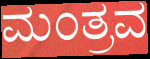
ಮಂತ್ರವ